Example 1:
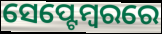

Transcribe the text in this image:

ସେପ୍ଟେମ୍ୱରରେ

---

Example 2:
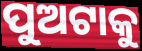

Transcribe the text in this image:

ପୁଅଟାକୁ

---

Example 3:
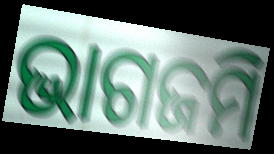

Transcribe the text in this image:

ଭାଗଜମି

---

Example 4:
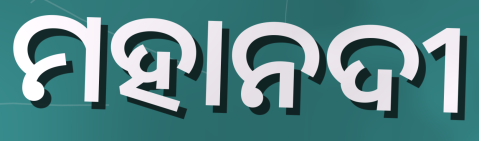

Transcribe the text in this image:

ମହାନଦୀ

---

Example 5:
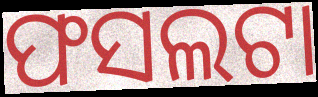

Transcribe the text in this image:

ଫସଲଟା